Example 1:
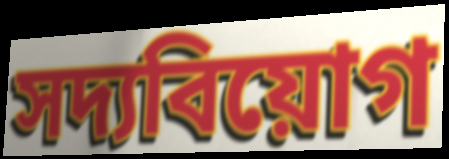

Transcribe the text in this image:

সদ্যবিয়োগ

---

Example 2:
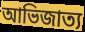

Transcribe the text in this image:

আভিজাত্য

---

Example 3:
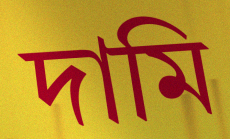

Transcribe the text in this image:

দামি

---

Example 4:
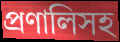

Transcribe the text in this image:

প্রণালিসহ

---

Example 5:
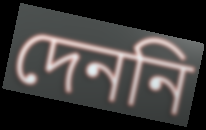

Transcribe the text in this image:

দেননি